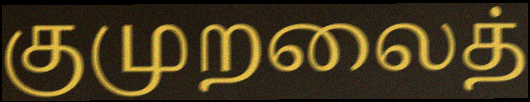
குமுறலைத்